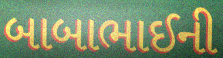
બાબાભાઈની